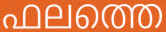
ഫലത്തെ